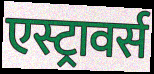
एस्ट्रावर्स